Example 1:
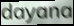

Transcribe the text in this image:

dayana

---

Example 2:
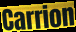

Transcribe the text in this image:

Carrion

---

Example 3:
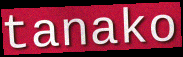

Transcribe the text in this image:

tanako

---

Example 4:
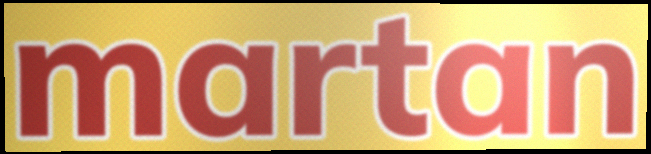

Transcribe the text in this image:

martan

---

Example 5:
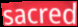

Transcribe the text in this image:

sacred